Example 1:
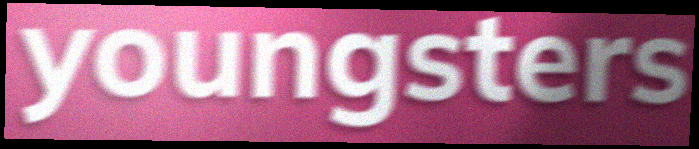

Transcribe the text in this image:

youngsters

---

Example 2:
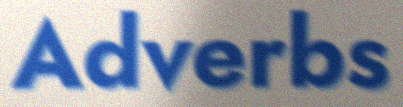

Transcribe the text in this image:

Adverbs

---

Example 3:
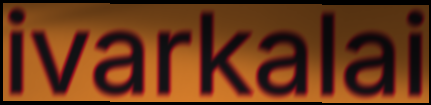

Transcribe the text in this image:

ivarkalai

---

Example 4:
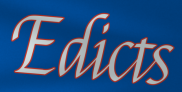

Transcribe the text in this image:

Edicts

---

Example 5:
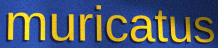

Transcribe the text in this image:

muricatus